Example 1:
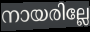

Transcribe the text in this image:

നായരില്ലേ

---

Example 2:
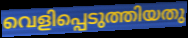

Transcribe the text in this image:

വെളിപ്പെടുത്തിയതു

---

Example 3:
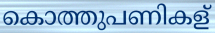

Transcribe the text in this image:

കൊത്തുപണികള്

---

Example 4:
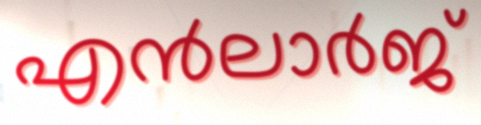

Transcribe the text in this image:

എൻലാർജ്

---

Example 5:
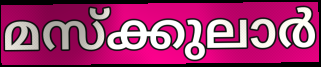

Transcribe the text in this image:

മസ്ക്കുലാർ